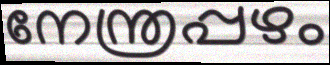
നേന്ത്രപ്പഴം